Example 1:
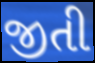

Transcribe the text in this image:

જીતી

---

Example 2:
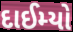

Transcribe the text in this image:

દાઈમ્યો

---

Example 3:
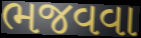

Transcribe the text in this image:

ભજવવા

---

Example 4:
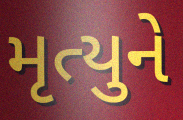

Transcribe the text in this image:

મૃત્યુને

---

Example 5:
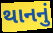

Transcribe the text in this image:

થાનનું